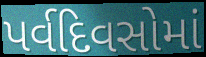
પર્વદિવસોમાં